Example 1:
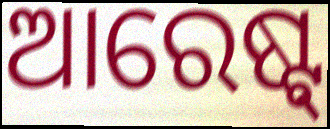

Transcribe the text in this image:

ଆରେଷ୍ଟ୍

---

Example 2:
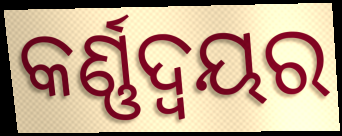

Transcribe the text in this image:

କର୍ଣ୍ଣଦ୍ୱୟର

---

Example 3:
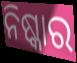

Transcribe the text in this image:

ନିଷ୍କାର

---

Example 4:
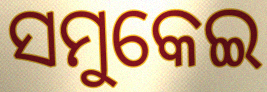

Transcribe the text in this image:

ସମୁକେଇ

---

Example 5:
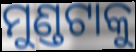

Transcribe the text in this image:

ମୁଣ୍ଡଟାକୁ